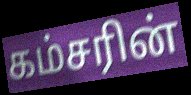
கம்சரின்